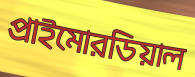
প্রাইমোরডিয়াল